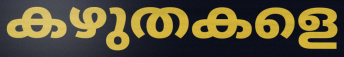
കഴുതകളെ